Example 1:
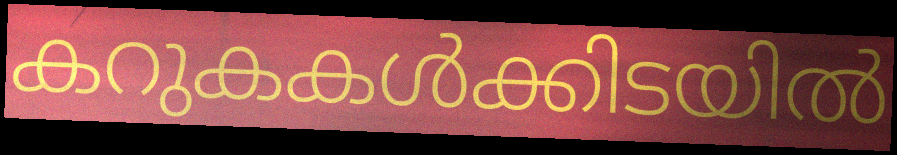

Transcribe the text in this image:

കറുകകൾക്കിടയിൽ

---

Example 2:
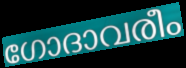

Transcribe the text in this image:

ഗോദാവരീം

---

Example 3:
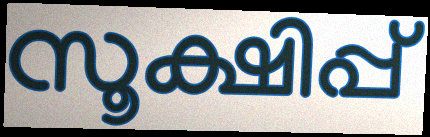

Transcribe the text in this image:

സൂക്ഷിപ്പ്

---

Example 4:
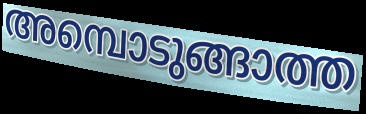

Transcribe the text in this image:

അമ്പൊടുങ്ങാത്ത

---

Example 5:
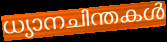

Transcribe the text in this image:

ധ്യാനചിന്തകൾ